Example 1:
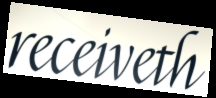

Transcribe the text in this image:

receiveth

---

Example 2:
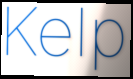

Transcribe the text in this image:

Kelp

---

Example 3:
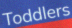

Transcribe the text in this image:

Toddlers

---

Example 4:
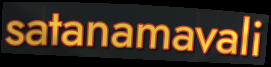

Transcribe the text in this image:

satanamavali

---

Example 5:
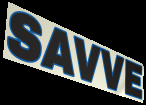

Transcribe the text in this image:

SAVVE